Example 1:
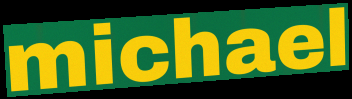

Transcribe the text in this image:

michael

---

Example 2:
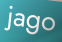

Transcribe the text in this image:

jago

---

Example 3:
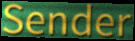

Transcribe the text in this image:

Sender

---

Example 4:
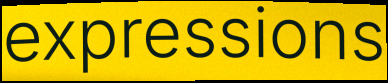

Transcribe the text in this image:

expressions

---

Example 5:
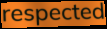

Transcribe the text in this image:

respected